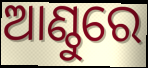
ଆଣ୍ଠୁରେ